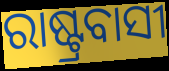
ରାଷ୍ଟ୍ରବାସୀ